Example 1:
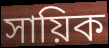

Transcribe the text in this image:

সায়িক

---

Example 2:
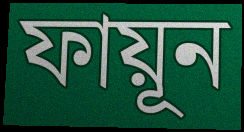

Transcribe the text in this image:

ফায়ূন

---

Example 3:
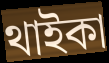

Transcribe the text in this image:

থাইকা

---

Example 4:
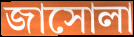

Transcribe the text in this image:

জাসোলা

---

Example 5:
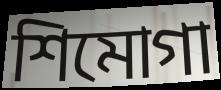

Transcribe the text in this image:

শিমোগা